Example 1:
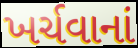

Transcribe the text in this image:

ખર્ચવાનાં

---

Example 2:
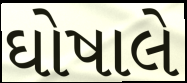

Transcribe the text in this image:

ઘોષાલે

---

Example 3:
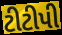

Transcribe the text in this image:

ટીટીપી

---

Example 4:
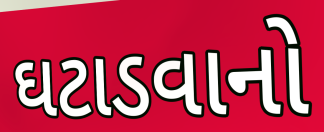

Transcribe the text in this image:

ઘટાડવાનો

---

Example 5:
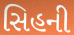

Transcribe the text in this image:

સિહની